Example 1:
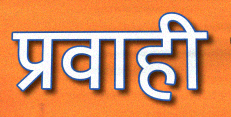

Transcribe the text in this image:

प्रवाही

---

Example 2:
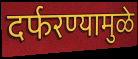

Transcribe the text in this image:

दर्फरण्यामुळे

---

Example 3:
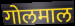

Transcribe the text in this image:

गोलमाल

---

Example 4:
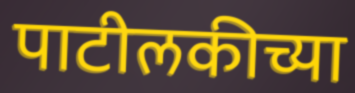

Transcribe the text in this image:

पाटीलकीच्या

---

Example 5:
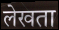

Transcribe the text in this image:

लेखता